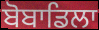
ਬੋਬਾਡਿਲਾ